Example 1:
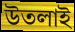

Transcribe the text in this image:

উতলাই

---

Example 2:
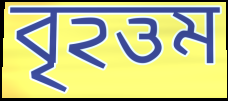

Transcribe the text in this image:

বৃহত্তম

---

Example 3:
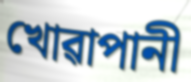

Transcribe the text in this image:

খোৱাপানী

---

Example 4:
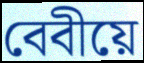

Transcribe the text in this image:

বেবীয়ে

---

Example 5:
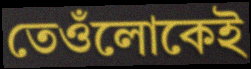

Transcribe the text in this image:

তেওঁলোকেই